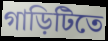
গাড়িটিতে